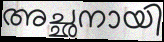
അച്ഛനായി